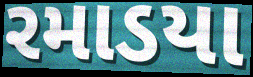
રમાડયા